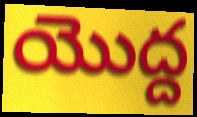
యొద్ద